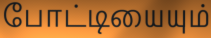
போட்டியையும்